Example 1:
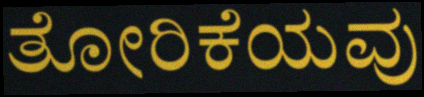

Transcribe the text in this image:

ತೋರಿಕೆಯವು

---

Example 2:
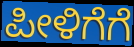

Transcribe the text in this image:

ಪೀಳಿಗೆಗೆ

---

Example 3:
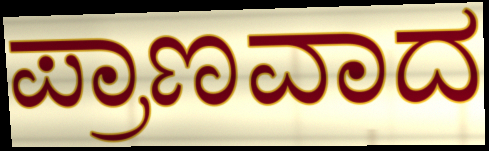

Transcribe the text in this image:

ಪ್ರಾಣವಾದ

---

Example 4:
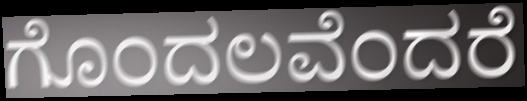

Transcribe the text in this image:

ಗೊಂದಲವೆಂದರೆ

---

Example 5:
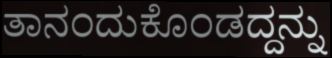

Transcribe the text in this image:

ತಾನಂದುಕೊಂಡದ್ದನ್ನು